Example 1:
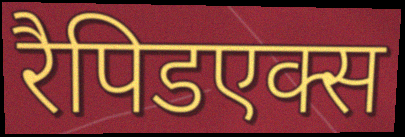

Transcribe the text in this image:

रैपिडएक्स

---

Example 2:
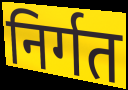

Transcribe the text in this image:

निर्गत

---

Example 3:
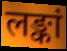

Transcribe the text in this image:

लङ्कां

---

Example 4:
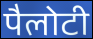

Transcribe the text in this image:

पैलोटी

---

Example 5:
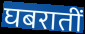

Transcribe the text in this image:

घबरातीं